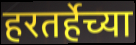
हरतर्हेच्या